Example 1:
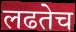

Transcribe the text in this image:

लढतेच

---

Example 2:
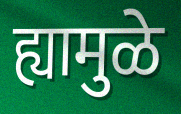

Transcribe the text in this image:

ह्यामुळे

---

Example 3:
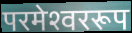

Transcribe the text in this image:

परमेश्वररूप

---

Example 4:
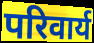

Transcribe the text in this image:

परिवार्य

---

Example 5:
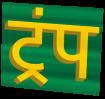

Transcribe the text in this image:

ट्रंप